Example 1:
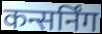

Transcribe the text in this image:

कन्सर्निंग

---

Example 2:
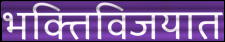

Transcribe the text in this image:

भक्तिविजयात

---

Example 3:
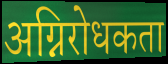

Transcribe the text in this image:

अग्निरोधकता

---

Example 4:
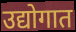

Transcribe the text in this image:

उद्योगात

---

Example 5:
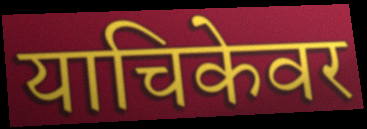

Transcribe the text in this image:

याचिकेवर